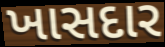
ખાસદાર